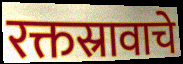
रक्तस्रावाचे